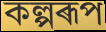
কল্পৰূপ